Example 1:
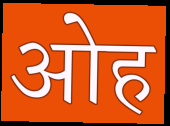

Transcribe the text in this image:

ओह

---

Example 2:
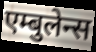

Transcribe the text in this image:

एम्बुलेन्स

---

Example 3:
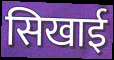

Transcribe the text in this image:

सिखाई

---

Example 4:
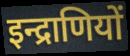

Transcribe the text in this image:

इन्द्राणियों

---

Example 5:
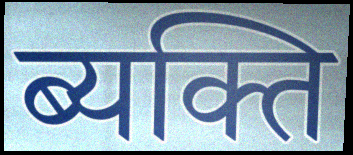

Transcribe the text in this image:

ब्यक्ति